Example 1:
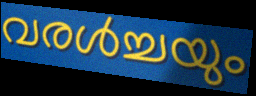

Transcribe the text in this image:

വരൾച്ചയും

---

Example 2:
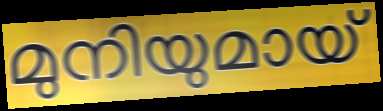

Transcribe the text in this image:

മുനിയുമായ്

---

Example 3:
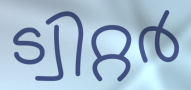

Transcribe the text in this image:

ട്വിറ്റർ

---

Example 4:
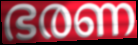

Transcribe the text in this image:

ഭരണ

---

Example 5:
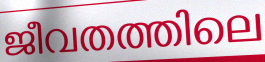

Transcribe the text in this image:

ജീവതത്തിലെ